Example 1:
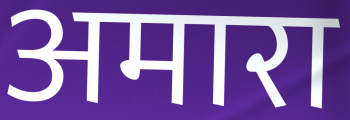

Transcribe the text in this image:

अमारा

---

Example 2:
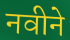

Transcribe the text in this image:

नवीने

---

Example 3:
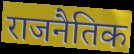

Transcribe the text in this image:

राजनैतिक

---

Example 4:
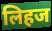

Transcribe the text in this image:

लिहज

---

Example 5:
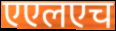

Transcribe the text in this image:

एएलएच